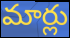
మార్లు